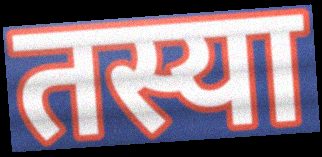
तस्या